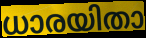
ധാരയിതാ